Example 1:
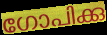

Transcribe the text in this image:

ഗോപിക്കു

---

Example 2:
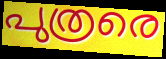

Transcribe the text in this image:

പുത്രരെ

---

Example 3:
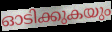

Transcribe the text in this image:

ഓടിക്കുകയും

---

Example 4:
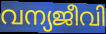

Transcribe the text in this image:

വന്യജീവി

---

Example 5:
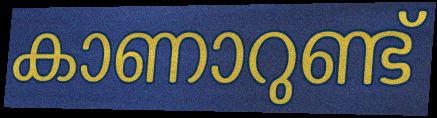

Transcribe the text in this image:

കാണാറുണ്ട്